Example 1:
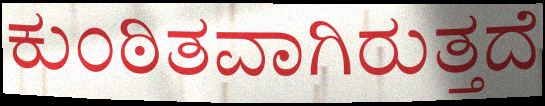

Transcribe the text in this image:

ಕುಂಠಿತವಾಗಿರುತ್ತದೆ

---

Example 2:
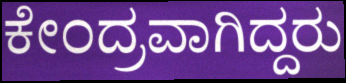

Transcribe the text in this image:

ಕೇಂದ್ರವಾಗಿದ್ದರು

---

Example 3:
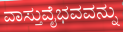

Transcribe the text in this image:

ವಾಸ್ತುವೈಭವವನ್ನು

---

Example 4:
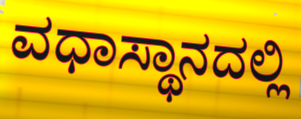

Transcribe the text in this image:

ವಧಾಸ್ಥಾನದಲ್ಲಿ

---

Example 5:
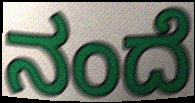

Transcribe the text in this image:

ನಂದೆ